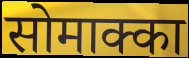
सोमाक्का